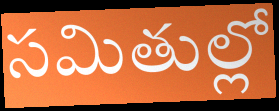
సమితుల్లో